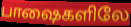
பாஷைகளிலே